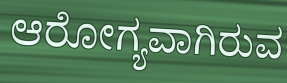
ಆರೋಗ್ಯವಾಗಿರುವ